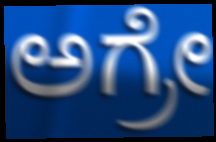
ಅಗ್ರೇ